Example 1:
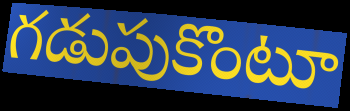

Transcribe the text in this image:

గడుపుకొంటూ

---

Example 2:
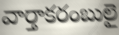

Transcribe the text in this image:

వార్తాకరంబులై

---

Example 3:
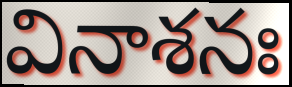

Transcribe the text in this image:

వినాశనః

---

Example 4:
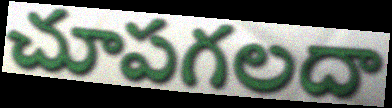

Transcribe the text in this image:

చూపగలదా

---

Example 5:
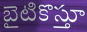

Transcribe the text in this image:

బైటికొస్తూ